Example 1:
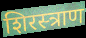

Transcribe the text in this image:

शिरस्त्राण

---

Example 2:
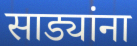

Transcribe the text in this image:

साड्यांना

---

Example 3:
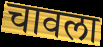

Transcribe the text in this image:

चावला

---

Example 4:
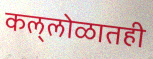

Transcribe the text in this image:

कल्लोळातही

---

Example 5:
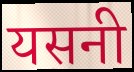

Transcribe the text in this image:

यसनी